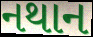
નથાન